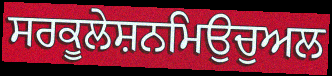
ਸਰਕੂਲੇਸ਼ਨਮਿਉਚੁਅਲ